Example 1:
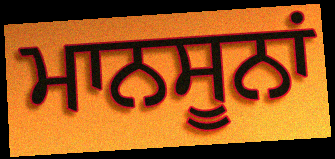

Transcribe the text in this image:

ਮਾਨਸੂਨਾਂ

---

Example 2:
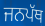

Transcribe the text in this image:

ਜਨਪੱਥ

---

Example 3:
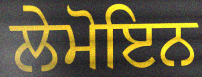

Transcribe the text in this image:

ਲੇਮੋਇਨ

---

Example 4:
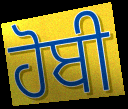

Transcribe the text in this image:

ਹੋਬੀ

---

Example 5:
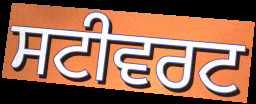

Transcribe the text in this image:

ਸਟੀਵਰਟ